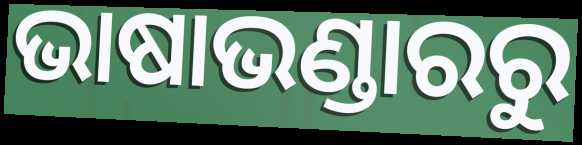
ଭାଷାଭଣ୍ଡାରରୁ